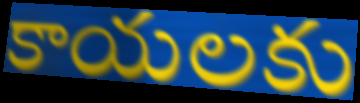
కాయలకు